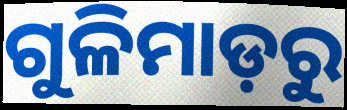
ଗୁଳିମାଡ଼ରୁ